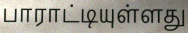
பாராட்டியுள்ளது